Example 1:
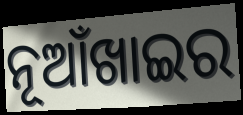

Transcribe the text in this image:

ନୂଆଁଖାଇର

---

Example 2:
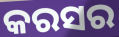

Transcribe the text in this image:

କରସର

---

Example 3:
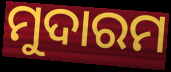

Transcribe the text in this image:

ମୁଦାରମ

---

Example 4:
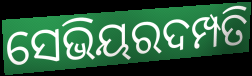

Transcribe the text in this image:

ସେଭିୟରଦମ୍ପତି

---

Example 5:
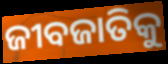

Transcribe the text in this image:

ଜୀବଜାତିକୁ